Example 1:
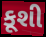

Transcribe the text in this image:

કૂશી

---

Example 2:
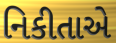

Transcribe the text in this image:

નિકીતાએ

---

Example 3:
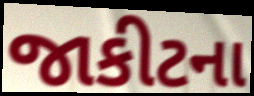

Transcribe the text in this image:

જાકીટના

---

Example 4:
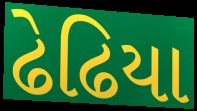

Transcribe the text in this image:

ઢેઢિયા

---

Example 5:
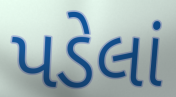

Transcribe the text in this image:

પડેલાં